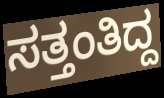
ಸತ್ತಂತಿದ್ದ